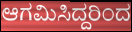
ಆಗಮಿಸಿದ್ದರಿಂದ